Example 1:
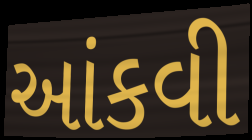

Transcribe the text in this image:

આંકવી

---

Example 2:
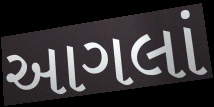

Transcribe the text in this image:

આગલાં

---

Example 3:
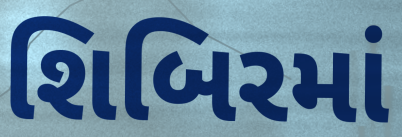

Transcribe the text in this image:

શિબિરમાં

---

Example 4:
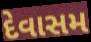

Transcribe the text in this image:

દેવાસમ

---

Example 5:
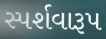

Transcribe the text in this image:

સ્પર્શવારૂપ